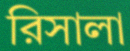
রিসালা